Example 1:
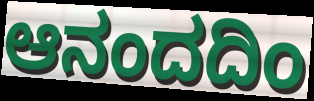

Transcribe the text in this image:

ಆನಂದದಿಂ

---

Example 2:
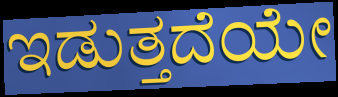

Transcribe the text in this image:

ಇಡುತ್ತದೆಯೇ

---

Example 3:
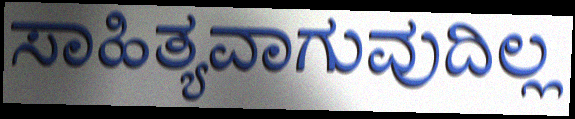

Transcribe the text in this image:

ಸಾಹಿತ್ಯವಾಗುವುದಿಲ್ಲ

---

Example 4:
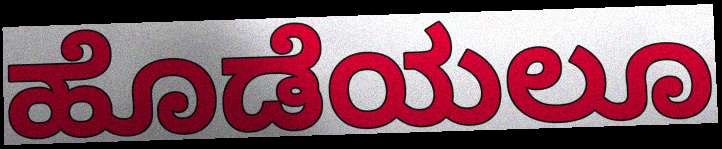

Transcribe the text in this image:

ಹೊಡೆಯಲೂ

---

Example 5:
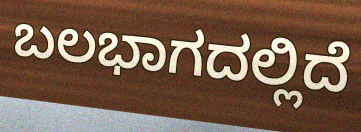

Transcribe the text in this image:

ಬಲಭಾಗದಲ್ಲಿದೆ